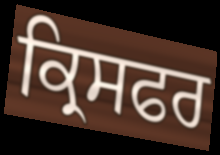
ਕ੍ਰਿਸਫਰ